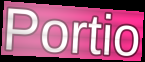
Portio